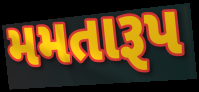
મમતારૂપ